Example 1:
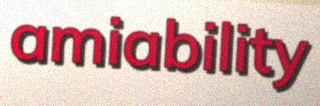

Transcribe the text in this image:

amiability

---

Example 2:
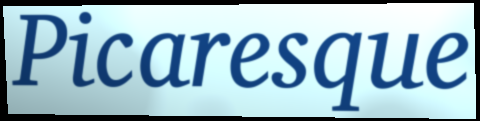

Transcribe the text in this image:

Picaresque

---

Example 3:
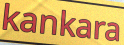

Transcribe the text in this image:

kankara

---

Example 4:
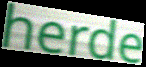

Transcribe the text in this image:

herde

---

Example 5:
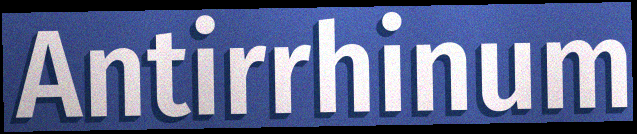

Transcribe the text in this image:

Antirrhinum